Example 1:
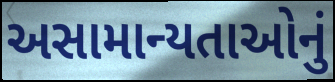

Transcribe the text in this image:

અસામાન્યતાઓનું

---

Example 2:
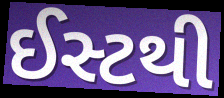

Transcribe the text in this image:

ઈસ્ટથી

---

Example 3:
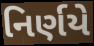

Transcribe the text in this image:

નિર્ણયે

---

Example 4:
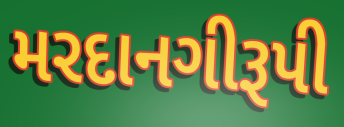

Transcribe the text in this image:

મરદાનગીરૂપી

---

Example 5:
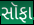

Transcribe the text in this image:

સૉફા